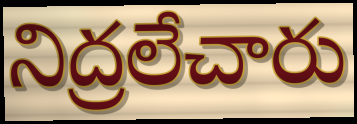
నిద్రలేచారు